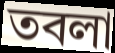
তবলা